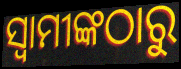
ସ୍ବାମୀଙ୍କଠାରୁ